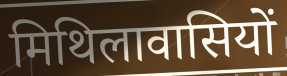
मिथिलावासियों